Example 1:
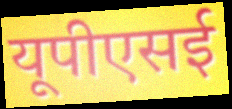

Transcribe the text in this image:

यूपीएसई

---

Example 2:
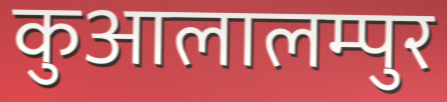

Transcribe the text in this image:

कुआलालम्पुर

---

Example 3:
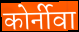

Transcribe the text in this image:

कोर्नीवा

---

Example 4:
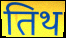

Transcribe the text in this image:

तिथ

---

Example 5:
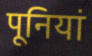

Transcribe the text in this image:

पूनियां